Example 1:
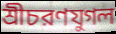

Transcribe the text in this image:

শ্রীচরণযুগল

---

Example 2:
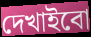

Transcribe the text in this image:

দেখাইবো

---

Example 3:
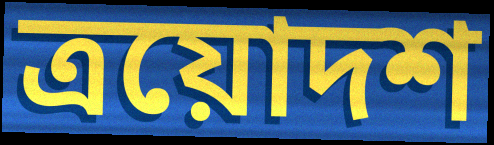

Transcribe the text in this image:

ত্রয়োদশ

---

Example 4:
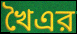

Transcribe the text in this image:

খৈএর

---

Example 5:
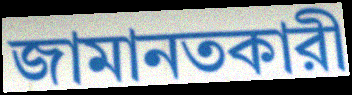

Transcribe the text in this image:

জামানতকারী